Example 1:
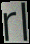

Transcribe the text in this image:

rl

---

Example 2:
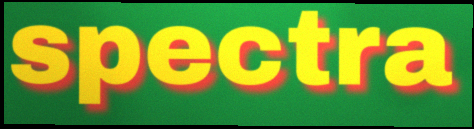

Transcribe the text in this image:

spectra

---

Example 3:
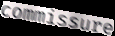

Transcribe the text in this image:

commissure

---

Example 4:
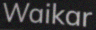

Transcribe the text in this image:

Waikar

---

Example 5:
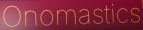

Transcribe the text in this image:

Onomastics